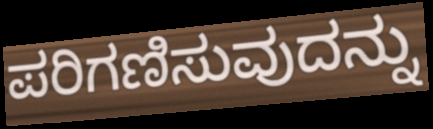
ಪರಿಗಣಿಸುವುದನ್ನು